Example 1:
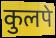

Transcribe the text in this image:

कुलपे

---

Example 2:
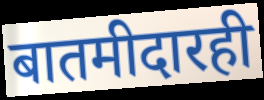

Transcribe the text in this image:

बातमीदारही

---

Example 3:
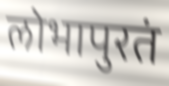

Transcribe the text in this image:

लोभापुरतं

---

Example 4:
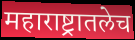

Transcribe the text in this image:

महाराष्ट्रातलेच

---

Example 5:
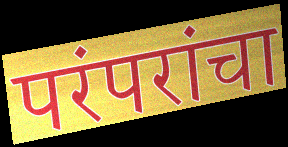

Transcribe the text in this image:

परंपरांचा